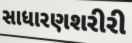
સાધારણશરીરી